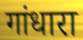
गांधारा